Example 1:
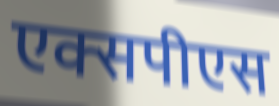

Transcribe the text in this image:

एक्सपीएस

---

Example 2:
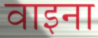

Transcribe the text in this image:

वाइना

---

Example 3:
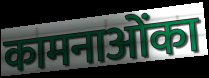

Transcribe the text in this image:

कामनाओंका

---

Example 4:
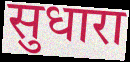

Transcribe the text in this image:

सुधारा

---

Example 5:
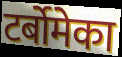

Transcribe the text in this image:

टर्बोमेका